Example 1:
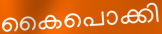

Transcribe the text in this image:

കൈപൊക്കി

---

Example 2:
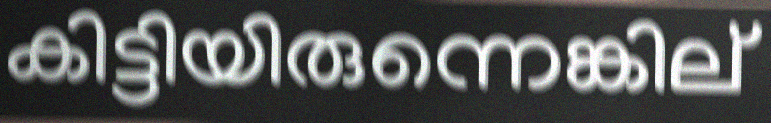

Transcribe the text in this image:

കിട്ടിയിരുന്നെങ്കില്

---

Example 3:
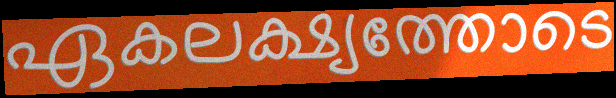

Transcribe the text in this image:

ഏകലക്ഷ്യത്തോടെ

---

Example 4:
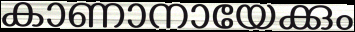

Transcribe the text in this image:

കാണാനായേക്കും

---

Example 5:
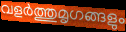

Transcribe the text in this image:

വളർത്തുമൃഗങ്ങളും